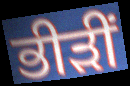
ਭੀੜੀਂ